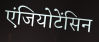
एंजियोटेंसिन